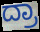
ದ್ರಾ